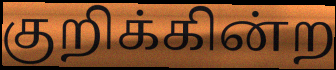
குறிக்கின்ற